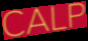
CALP